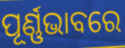
ପୂର୍ଣ୍ଣଭାବରେ